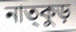
নাত্কুড়